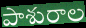
పాశురాల